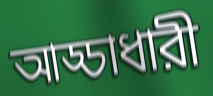
আড্ডাধারী